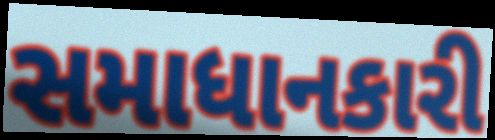
સમાધાનકારી